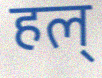
हल्